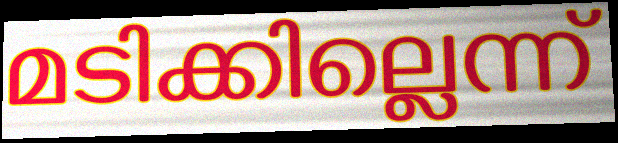
മടിക്കില്ലെന്ന്